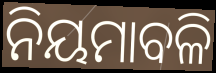
ନିୟମାବଳି